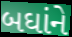
બઘાંને